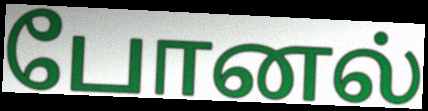
போனல்